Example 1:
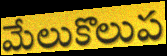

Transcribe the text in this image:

మేలుకొలుప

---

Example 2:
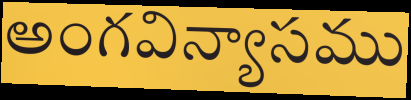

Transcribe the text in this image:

అంగవిన్యాసము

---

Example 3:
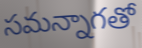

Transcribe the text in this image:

సమన్నాగతో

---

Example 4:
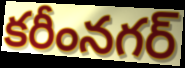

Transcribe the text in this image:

కరీంనగర్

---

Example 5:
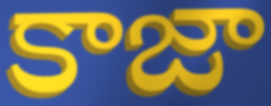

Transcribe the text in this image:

కాజా